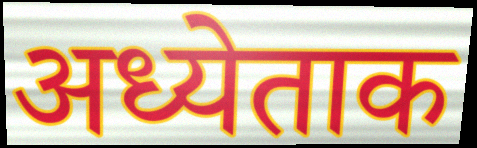
अध्येताक